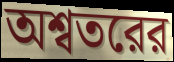
অশ্বতরের